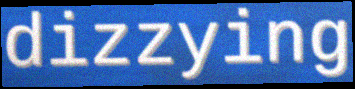
dizzying